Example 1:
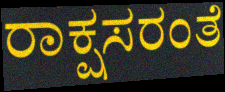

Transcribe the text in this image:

ರಾಕ್ಷಸರಂತೆ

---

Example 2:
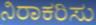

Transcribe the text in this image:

ನಿರಾಕರಿಸು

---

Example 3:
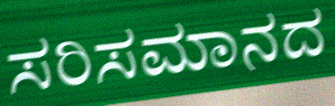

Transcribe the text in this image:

ಸರಿಸಮಾನದ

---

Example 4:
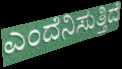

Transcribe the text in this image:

ಎಂದೆನಿಸುತ್ತಿದೆ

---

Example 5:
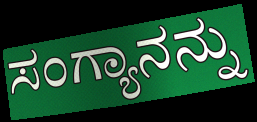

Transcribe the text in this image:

ಸಂಗ್ಯಾನನ್ನು